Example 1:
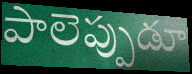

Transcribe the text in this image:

పాలెప్పుడూ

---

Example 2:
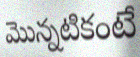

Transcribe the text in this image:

మొన్నటికంటే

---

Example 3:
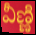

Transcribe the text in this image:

వీణ్ణి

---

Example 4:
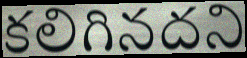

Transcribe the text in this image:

కలిగినదని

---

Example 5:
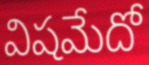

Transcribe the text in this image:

విషమేదో